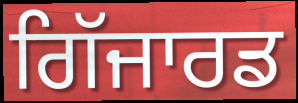
ਗਿੱਜਾਰਡ